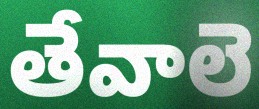
తేవాలె